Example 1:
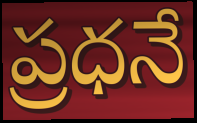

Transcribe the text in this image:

ప్రధనే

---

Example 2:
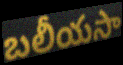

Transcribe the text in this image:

బలీయసా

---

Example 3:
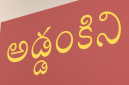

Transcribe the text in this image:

అడ్డంకిని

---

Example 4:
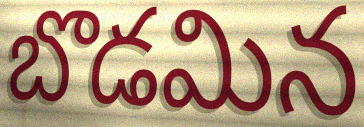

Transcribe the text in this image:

బొడమిన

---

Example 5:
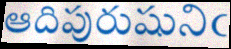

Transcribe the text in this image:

ఆదిపురుషునిఁ